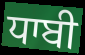
ਧਾਬੀ